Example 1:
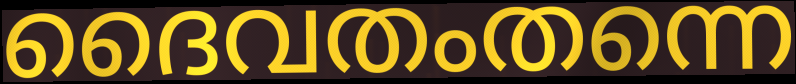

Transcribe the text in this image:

ദൈവതംതന്നെ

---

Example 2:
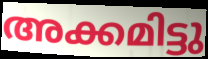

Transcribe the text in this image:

അക്കമിട്ടു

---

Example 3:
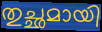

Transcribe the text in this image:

തുച്ഛമായി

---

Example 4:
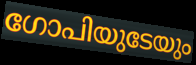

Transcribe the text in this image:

ഗോപിയുടേയും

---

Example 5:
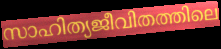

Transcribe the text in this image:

സാഹിത്യജീവിതത്തിലെ